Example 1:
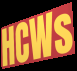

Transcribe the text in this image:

HCWs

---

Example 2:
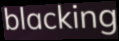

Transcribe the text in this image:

blacking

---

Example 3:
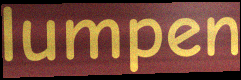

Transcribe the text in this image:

lumpen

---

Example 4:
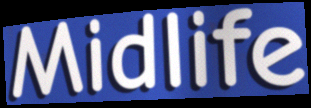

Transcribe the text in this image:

Midlife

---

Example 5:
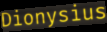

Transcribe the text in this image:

Dionysius